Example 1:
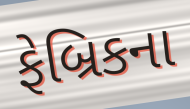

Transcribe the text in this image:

ફેબ્રિકના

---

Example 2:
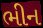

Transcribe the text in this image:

ભીન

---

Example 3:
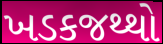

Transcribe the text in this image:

ખડકજથ્થો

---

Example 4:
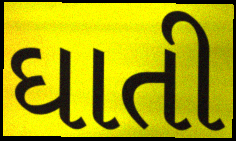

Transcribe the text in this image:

ઘાતી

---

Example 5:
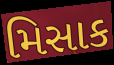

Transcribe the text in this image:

મિસાક